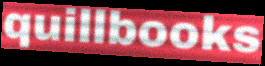
quillbooks